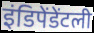
इंडिपेंडेंटली